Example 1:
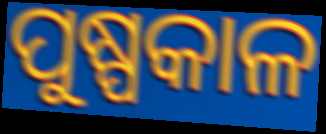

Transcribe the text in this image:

ପୁଷ୍ପକାଳ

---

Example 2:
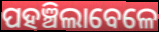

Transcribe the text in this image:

ପହଞ୍ଚିଲାବେଳେ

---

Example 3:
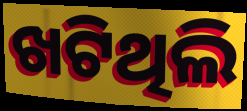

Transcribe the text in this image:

ଖଟିଥିଲି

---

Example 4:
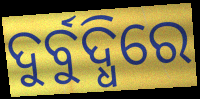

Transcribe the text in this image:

ଦୁର୍ବୁଦ୍ଧିରେ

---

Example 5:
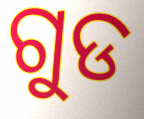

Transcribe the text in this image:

ଗୁଡ